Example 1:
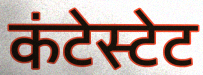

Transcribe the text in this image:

कंटेस्टेट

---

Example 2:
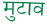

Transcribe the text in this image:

मुटाव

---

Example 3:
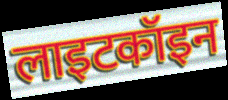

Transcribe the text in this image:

लाइटकॉइन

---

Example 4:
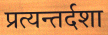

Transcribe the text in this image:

प्रत्यन्तर्दशा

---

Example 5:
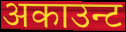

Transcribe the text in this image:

अकाउन्ट